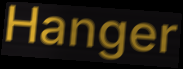
Hanger